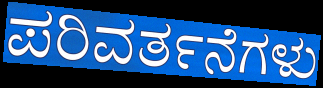
ಪರಿವರ್ತನೆಗಳು